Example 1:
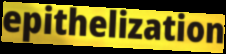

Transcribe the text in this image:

epithelization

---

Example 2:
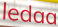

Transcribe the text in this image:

ledaa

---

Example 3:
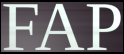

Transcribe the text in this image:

FAP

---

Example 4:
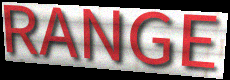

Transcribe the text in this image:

RANGE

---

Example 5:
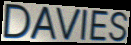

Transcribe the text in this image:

DAVIES